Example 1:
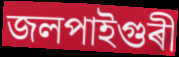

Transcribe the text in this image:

জলপাইগুৰী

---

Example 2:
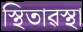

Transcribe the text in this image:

স্থিতাৱস্থা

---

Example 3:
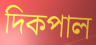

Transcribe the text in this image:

দিকপাল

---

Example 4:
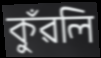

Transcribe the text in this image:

কুঁৱলি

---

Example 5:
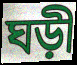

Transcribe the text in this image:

ঘড়ী